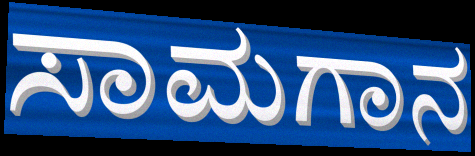
ಸಾಮಗಾನ